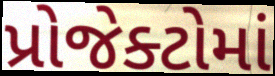
પ્રોજેક્ટોમાં